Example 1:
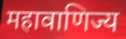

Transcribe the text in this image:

महावाणिज्य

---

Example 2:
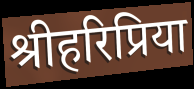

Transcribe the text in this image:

श्रीहरिप्रिया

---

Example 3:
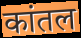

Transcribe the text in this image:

कांतल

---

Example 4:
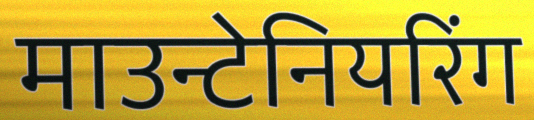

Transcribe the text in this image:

माउन्टेनियरिंग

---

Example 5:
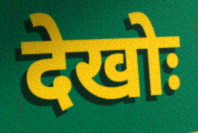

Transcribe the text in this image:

देखोः